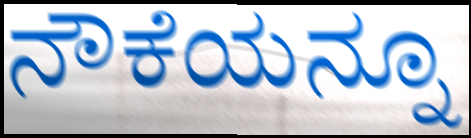
ನೌಕೆಯನ್ನೂ